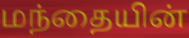
மந்தையின்